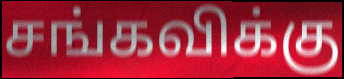
சங்கவிக்கு